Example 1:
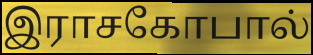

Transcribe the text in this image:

இராசகோபால்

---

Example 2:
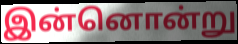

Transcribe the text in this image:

இன்னொன்று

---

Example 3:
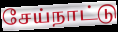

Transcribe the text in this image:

சேய்நாட்டு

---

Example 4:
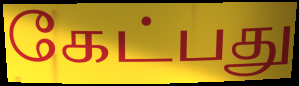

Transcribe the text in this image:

கேட்பது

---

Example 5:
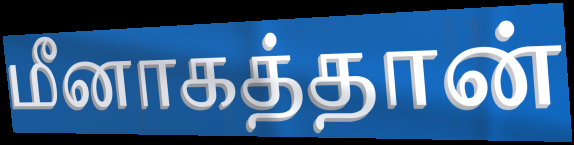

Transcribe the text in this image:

மீனாகத்தான்